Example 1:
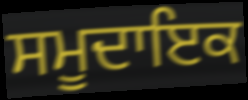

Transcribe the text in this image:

ਸਮੂਦਾਇਕ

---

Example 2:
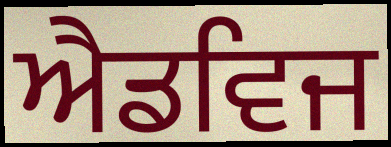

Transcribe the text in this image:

ਐਡਵਿਜ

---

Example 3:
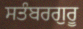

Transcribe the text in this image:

ਸਤੰਬਰਗੁਰੂ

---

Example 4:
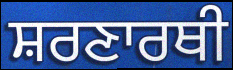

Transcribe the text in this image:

ਸ਼ਰਣਾਰਥੀ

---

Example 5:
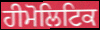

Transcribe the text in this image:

ਹੀਮੋਲਿਟਿਕ